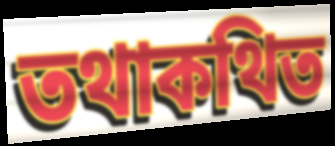
তথাকথিত